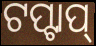
ଟପ୍ଟାପ୍